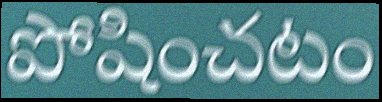
పోషించటం